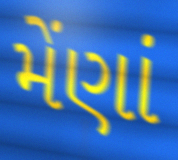
મેંણાં